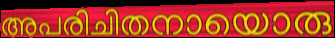
അപരിചിതനായൊരു